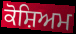
ਕੋਸ਼ਿਅਮ